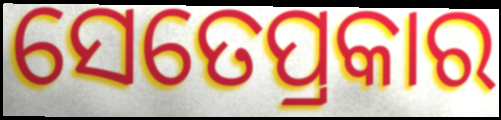
ସେତେପ୍ରକାର